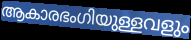
ആകാരഭംഗിയുള്ളവളും